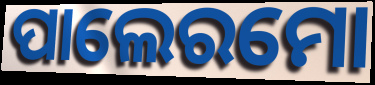
ପାଲେରମୋ